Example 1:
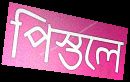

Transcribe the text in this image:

পিস্তলে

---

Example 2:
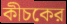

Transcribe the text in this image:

কীচকের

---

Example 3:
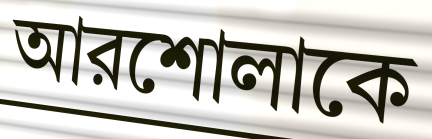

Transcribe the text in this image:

আরশোলাকে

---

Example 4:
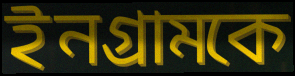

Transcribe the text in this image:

ইনগ্রামকে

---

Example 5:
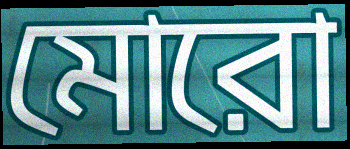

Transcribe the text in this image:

মোরো